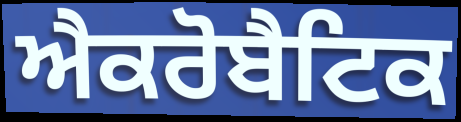
ਐਕਰੋਬੈਟਿਕ